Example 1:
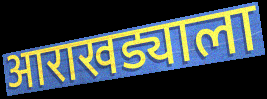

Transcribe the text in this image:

आराखड्याला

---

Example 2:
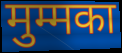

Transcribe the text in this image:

मुम्मका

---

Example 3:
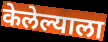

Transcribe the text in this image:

केलेल्याला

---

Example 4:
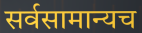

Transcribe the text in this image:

सर्वसामान्यच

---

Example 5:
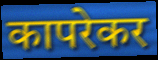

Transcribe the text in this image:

कापरेकर